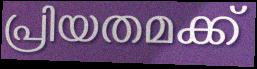
പ്രിയതമക്ക്